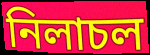
নিলাচল